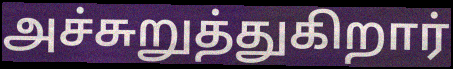
அச்சுறுத்துகிறார்